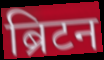
ब्रिटन